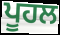
ਪੂਹਲ